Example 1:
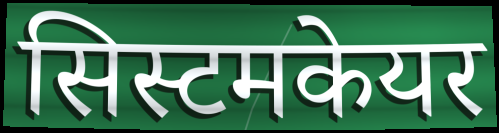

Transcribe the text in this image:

सिस्टमकेयर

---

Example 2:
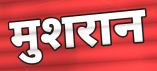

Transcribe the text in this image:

मुशरान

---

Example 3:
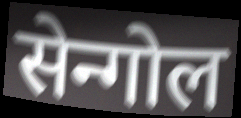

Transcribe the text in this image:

सेन्गोल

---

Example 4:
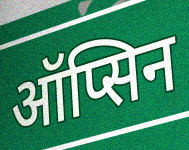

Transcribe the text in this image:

ऑप्सिन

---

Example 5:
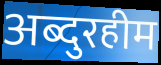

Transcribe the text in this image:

अब्दुरहीम